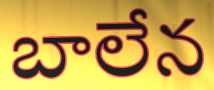
బాలేన